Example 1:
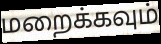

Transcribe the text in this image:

மறைக்கவும்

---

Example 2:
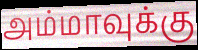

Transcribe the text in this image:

அம்மாவுக்கு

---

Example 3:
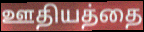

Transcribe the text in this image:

ஊதியத்தை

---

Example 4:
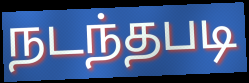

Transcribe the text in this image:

நடந்தபடி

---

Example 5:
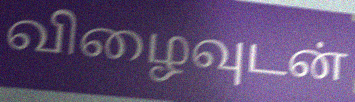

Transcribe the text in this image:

விழைவுடன்